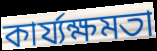
কাৰ্য্যক্ষমতা